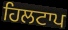
ਹਿਲਟਾਪ